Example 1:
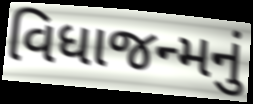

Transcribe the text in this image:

વિધાજન્મનું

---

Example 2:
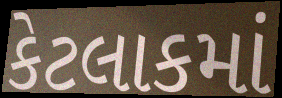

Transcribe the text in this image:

કેટલાકમાં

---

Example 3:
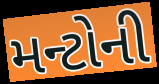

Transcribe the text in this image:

મન્ટોની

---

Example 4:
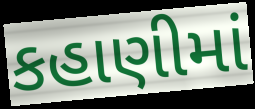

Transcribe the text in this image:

કહાણીમાં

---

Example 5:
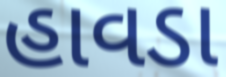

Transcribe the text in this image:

હાવડા